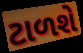
ટાળશે